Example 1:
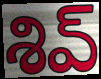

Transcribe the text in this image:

శివ్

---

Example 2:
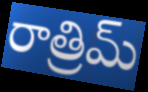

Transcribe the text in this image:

రాత్రిమ్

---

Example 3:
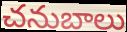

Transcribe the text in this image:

చనుబాలు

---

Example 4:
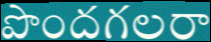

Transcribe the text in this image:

పొందగలరా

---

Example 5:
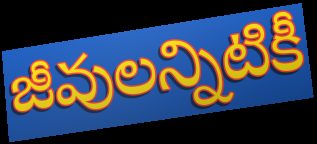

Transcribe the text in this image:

జీవులన్నిటికీ